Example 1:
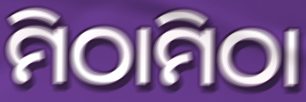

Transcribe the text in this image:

ମିଠାମିଠା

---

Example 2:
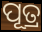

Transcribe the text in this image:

ପୂତ୍ର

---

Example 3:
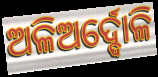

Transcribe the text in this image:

ଅଳିଅର୍ଦ୍ଦୋଳି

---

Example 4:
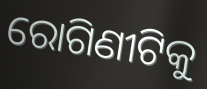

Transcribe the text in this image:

ରୋଗିଣୀଟିକୁ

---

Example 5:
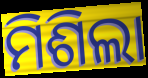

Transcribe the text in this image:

ମିଶିଲା